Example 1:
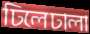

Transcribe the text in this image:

ঢিলেঢালা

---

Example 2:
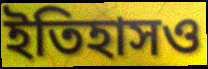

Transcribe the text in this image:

ইতিহাসও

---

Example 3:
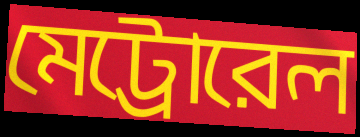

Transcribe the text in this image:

মেট্রোরেল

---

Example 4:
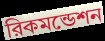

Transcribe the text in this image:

রিকমন্ডেশন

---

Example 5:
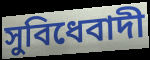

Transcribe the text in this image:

সুবিধেবাদী